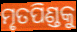
ମୃତପିଣ୍ଡକୁ